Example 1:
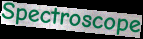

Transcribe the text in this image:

Spectroscope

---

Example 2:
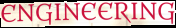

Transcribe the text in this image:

ENGINEERING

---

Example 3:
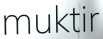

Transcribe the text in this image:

muktir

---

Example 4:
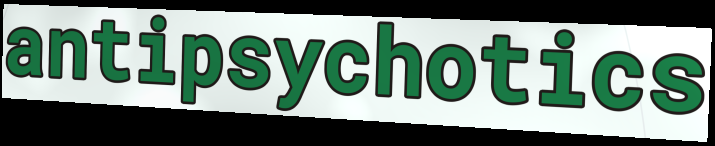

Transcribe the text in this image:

antipsychotics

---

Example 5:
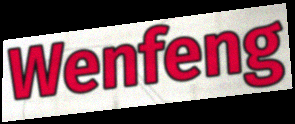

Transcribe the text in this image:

Wenfeng